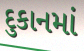
દુકાનમાં